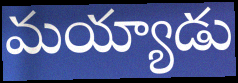
మయ్యాడు